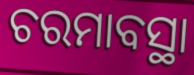
ଚରମାବସ୍ଥା